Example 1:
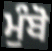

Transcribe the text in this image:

ਮੁੰਬੋ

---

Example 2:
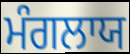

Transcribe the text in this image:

ਮੰਗਲਾਯ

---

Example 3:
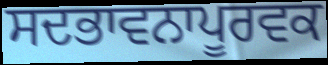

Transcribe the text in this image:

ਸਦਭਾਵਨਾਪੂਰਵਕ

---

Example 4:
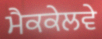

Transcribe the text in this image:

ਮੈਕਕੇਲਵੇ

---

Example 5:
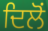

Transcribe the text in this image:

ਦਿਲੋਂ